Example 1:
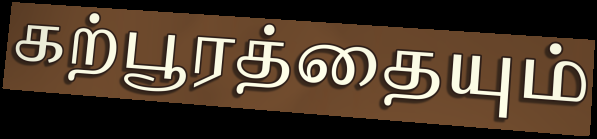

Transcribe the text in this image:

கற்பூரத்தையும்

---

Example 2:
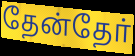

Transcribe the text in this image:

தேன்தேர்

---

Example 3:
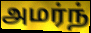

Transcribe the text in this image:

அமர்ந்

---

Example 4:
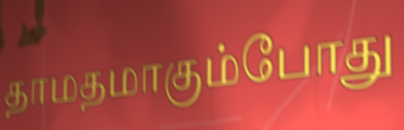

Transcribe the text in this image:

தாமதமாகும்போது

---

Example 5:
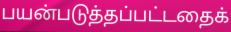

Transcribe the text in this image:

பயன்படுத்தப்பட்டதைக்